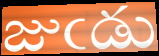
జుఁడు